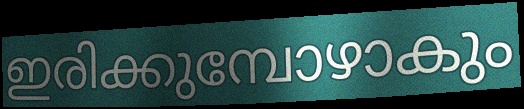
ഇരിക്കുമ്പോഴാകും